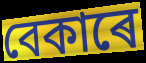
বেকাৰে